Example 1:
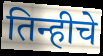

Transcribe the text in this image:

तिन्हीचे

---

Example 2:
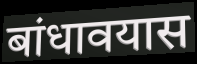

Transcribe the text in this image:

बांधावयास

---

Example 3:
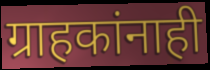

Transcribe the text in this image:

ग्राहकांनाही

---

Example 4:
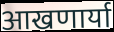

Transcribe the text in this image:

आखणार्या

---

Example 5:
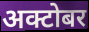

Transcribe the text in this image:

अक्टोबर